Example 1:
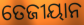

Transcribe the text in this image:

ତେଜୀୟାନ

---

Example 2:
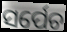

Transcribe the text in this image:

ସର୍ପେଚ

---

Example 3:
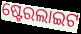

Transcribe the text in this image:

ଷ୍ଟେରଲାଇଟ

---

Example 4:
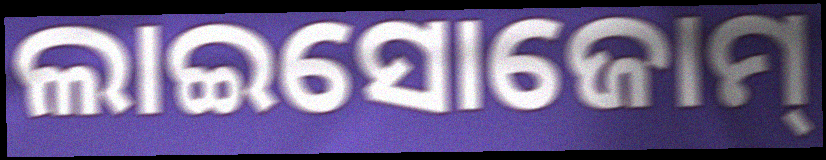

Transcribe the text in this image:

ଲାଇସୋଜୋମ୍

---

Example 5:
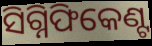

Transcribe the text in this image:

ସିଗ୍ନିଫିକେଣ୍ଟ